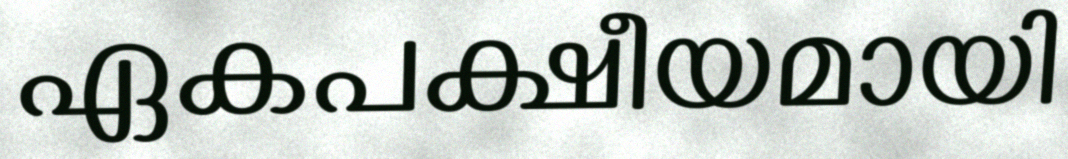
ഏകപക്ഷീയമായി